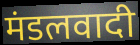
मंडलवादी